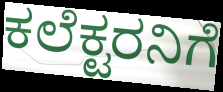
ಕಲೆಕ್ಟರನಿಗೆ